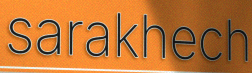
sarakhech